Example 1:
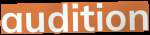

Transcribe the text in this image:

audition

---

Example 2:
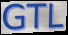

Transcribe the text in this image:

GTL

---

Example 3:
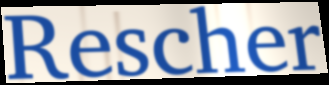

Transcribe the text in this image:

Rescher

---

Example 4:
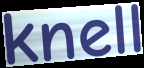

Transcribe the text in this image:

knell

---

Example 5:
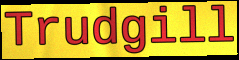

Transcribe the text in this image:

Trudgill